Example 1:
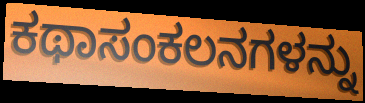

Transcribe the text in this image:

ಕಥಾಸಂಕಲನಗಳನ್ನು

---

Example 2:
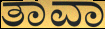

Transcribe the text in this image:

ತಾವಾ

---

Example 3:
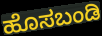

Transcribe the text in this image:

ಹೊಸಬಂಡಿ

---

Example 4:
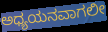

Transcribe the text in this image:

ಅಧ್ಯಯನವಾಗಲೀ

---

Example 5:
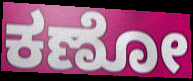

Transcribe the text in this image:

ಕಣೋ